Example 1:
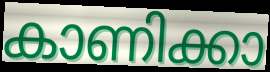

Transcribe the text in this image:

കാണിക്കാ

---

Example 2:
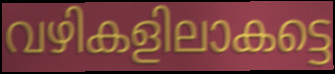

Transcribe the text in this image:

വഴികളിലാകട്ടെ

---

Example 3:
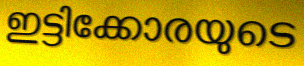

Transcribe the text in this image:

ഇട്ടിക്കോരയുടെ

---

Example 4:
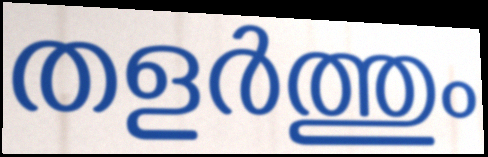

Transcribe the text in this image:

തളർത്തും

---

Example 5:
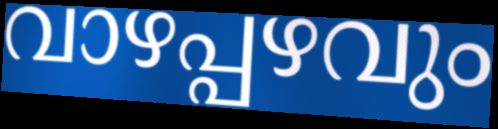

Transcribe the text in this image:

വാഴപ്പഴവും